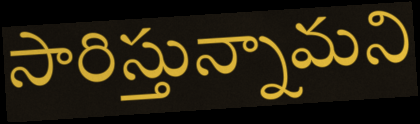
సారిస్తున్నామని